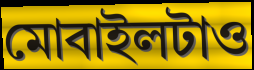
মোবাইলটাও